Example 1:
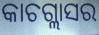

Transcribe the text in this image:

କାଚଗ୍ଲାସର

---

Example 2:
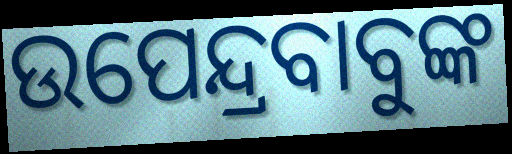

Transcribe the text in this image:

ଉପେନ୍ଦ୍ରବାବୁଙ୍କ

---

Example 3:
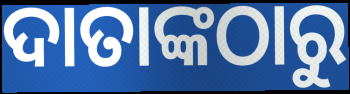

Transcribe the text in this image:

ଦାତାଙ୍କଠାରୁ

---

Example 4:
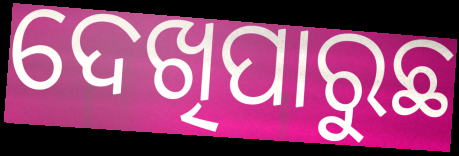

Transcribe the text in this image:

ଦେଖିପାରୁଛ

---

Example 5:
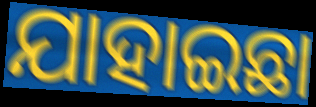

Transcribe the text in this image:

ଯାହାଇଛା